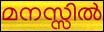
മനസ്സിൽ